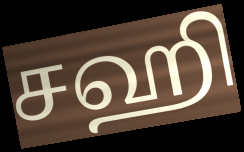
சஹி